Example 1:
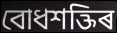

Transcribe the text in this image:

বোধশক্তিৰ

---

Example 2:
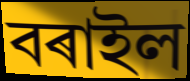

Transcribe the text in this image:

বৰাইল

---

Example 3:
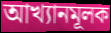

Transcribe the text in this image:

আখ্যানমূলক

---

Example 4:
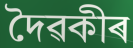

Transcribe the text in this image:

দৈৱকীৰ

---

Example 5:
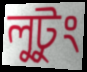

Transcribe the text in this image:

লুটুং